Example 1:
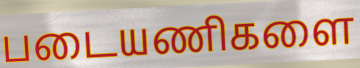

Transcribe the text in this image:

படையணிகளை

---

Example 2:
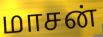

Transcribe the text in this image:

மாசன்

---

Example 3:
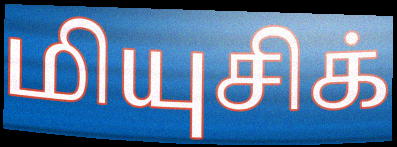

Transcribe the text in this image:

மியுசிக்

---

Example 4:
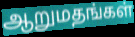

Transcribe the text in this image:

ஆறுமதங்கள்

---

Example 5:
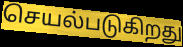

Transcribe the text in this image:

செயல்படுகிறது